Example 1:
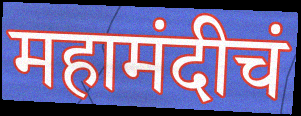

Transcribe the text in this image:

महामंदीचं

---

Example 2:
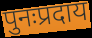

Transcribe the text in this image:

पुनःप्रदाय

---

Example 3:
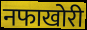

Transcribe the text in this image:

नफाखोरी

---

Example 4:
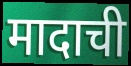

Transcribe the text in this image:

मादाची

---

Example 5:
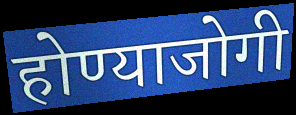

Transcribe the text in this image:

होण्याजोगी